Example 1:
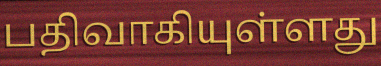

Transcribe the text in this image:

பதிவாகியுள்ளது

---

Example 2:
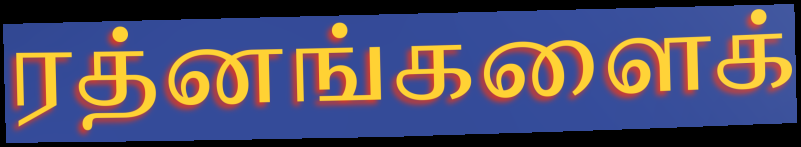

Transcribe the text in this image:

ரத்னங்களைக்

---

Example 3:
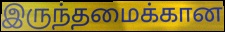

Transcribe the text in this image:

இருந்தமைக்கான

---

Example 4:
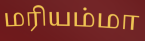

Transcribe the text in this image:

மரியம்மா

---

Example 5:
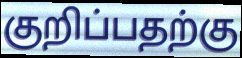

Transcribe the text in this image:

குறிப்பதற்கு